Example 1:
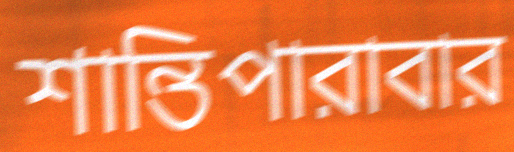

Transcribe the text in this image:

শান্তিপারাবার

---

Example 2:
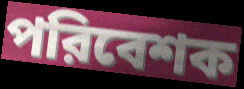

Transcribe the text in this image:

পরিবেশক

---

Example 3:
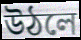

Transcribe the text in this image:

উঠলে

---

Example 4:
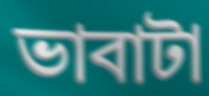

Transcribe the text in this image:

ভাবাটা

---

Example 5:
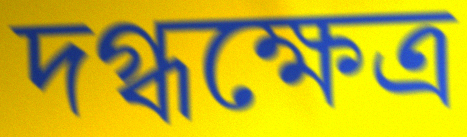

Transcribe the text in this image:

দগ্ধক্ষেত্র